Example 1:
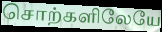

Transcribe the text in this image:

சொற்களிலேயே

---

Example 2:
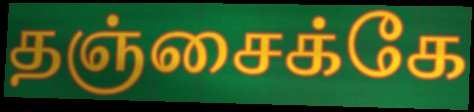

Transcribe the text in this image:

தஞ்சைக்கே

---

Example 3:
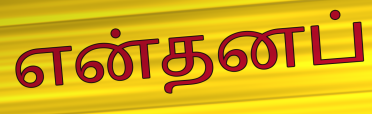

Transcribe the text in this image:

என்தனப்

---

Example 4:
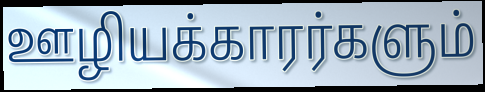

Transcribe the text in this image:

ஊழியக்காரர்களும்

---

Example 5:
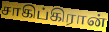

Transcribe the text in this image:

சாகிப்கிரான்